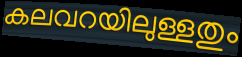
കലവറയിലുള്ളതും